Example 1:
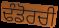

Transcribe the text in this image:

ਢੰਡੋਰਚੀ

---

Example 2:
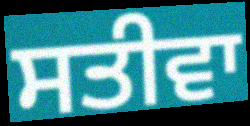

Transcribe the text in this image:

ਸਤੀਵਾ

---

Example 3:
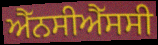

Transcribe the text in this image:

ਐੱਨਸੀਐੱਸਸੀ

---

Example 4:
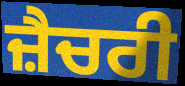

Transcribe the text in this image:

ਜ਼ੈਚਰੀ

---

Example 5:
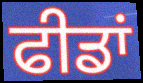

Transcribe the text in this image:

ਫੀਡਾਂ